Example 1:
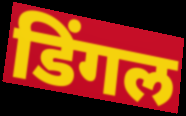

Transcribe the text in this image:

डिंगल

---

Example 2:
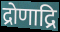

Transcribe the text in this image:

द्रोणाद्रि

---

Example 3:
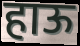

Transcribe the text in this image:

हाऊ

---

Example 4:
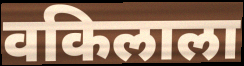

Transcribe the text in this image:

वकिलाला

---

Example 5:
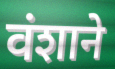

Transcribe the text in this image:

वंशाने